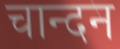
चान्दन